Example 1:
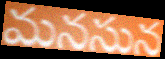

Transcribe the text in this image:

మనసున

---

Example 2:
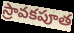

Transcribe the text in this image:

స్రావకపూత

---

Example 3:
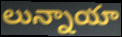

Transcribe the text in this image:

లున్నాయా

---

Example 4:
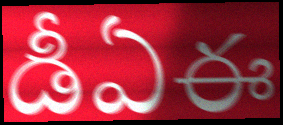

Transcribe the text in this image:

డీఏఈ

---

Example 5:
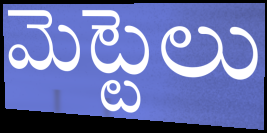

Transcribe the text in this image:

మెట్టెలు